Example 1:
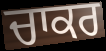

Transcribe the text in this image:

ਚਾਕਰ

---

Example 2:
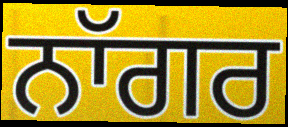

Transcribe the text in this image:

ਨਾੱਗਰ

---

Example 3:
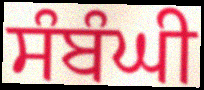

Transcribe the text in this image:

ਸੰਬੰਘੀ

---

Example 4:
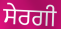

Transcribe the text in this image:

ਸੇਰਗੀ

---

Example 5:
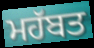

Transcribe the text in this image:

ਮਹੱਬਤ